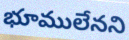
భూములేనని